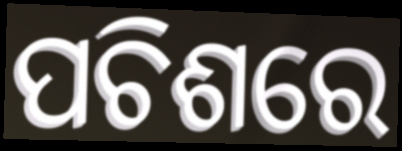
ପଚିଶରେ